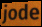
jode